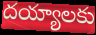
దయ్యాలకు